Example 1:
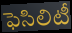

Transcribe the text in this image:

ఫెసిలిటీ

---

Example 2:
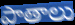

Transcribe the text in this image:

పాతాలు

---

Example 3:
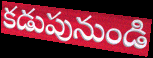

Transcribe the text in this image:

కడుపునుండి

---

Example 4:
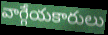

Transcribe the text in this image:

వాగ్గేయకారులు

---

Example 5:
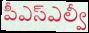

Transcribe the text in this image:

పీఎస్ఎల్వీ